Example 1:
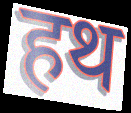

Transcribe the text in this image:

हथ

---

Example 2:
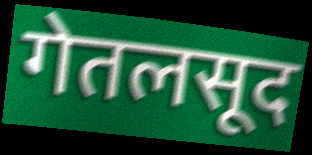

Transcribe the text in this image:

गेतलसूद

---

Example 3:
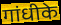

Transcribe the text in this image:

गांधीके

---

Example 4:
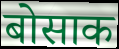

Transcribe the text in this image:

बोसाक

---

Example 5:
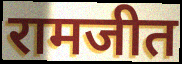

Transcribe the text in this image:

रामजीत